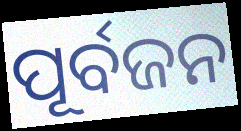
ପୂର୍ବଜନ